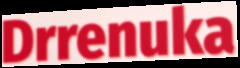
Drrenuka